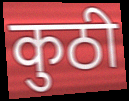
कुठी